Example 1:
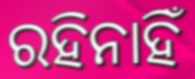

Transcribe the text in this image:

ରହିନାହିଁ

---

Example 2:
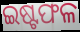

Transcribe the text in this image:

ଇଷ୍ଟଫଳ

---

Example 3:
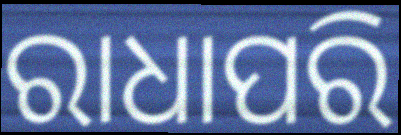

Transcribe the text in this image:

ରାଧାପରି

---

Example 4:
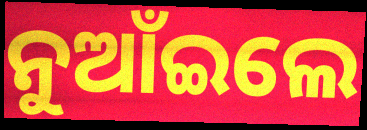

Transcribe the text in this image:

ନୁଆଁଇଲେ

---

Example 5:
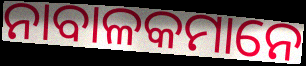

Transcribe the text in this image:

ନାବାଳକମାନେ